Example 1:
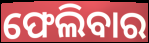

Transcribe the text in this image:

ଫେଲିବାର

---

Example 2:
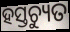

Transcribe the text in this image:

ହସ୍ତଚ୍ୟୁତ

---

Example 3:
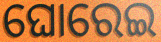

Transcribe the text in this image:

ଘୋରେଇ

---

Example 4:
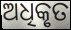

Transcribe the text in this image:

ଅଧିକୃତ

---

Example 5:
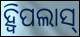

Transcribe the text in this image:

ହ୍ୱିପଲାସ୍